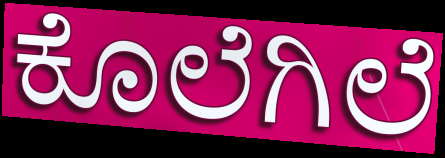
ಕೊಲೆಗಿಲೆ